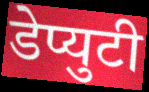
डेप्युटी